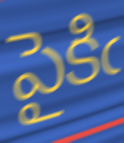
పైకిఁ